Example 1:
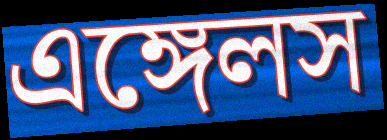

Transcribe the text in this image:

এঙ্গেলস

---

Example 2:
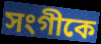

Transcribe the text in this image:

সংগীকে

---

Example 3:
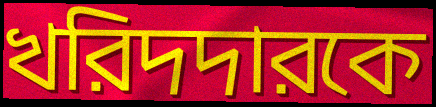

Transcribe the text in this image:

খরিদদারকে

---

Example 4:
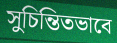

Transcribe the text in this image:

সুচিন্তিতভাবে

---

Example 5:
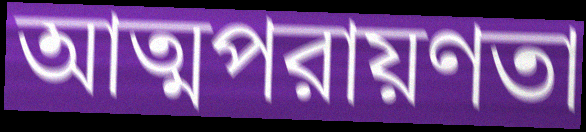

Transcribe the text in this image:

আত্মপরায়ণতা